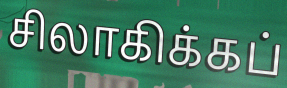
சிலாகிக்கப்